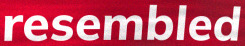
resembled